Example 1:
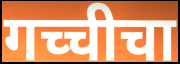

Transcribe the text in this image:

गच्चीचा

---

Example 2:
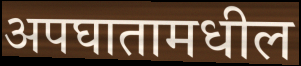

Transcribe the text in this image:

अपघातामधील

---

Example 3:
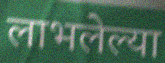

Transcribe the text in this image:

लाभलेल्या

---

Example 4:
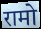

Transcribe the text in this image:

रामो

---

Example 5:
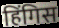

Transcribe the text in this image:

हिंगिस